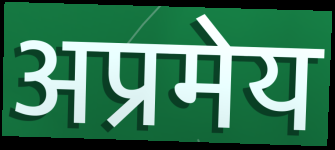
अप्रमेय